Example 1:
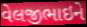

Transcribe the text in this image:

વેલજીભાઇને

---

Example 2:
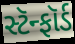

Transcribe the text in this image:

સ્ટૅન્ફૉર્ડ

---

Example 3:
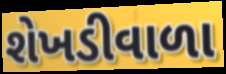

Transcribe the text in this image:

શેખડીવાળા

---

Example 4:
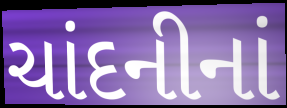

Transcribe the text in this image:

ચાંદનીનાં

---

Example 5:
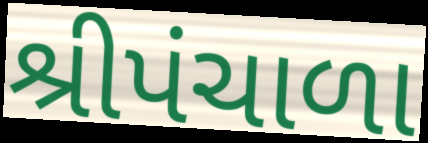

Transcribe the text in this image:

શ્રીપંચાળા